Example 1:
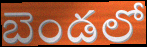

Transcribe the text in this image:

బెండలో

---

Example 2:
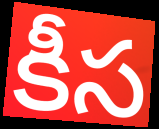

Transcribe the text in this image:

కీస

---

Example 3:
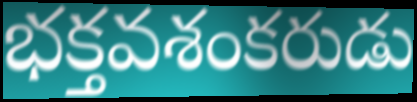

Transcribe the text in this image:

భక్తవశంకరుడు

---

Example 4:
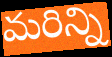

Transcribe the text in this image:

మరిన్ని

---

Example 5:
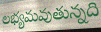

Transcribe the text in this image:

లభ్యమవుతున్నది